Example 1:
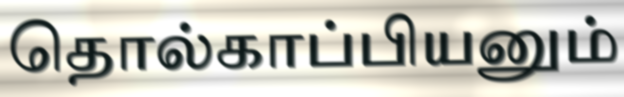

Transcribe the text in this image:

தொல்காப்பியனும்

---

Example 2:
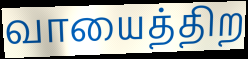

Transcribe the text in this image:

வாயைத்திற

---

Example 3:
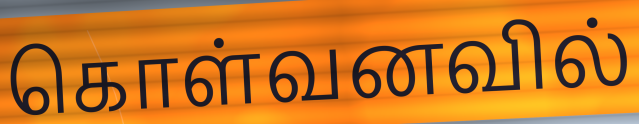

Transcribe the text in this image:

கொள்வனவில்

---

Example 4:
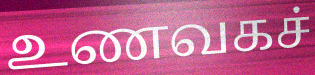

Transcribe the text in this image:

உணவகச்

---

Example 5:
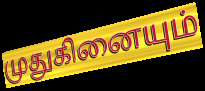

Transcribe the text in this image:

முதுகினையும்